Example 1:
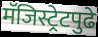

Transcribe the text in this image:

मॅजिस्ट्रेटपुढे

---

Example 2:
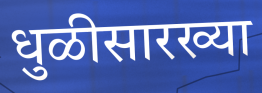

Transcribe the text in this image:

धुळीसारख्या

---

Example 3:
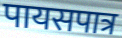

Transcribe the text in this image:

पायसपात्र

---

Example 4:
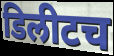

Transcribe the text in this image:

डिलीटच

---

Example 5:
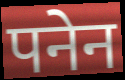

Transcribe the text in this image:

पनेन